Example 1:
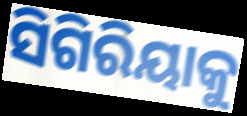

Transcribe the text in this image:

ସିଗିରିୟାକୁ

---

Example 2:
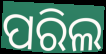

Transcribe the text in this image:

ପରିଲ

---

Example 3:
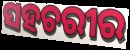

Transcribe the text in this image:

ସହଚରୀର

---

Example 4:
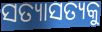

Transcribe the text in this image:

ସତ୍ୟାସତ୍ୟକୁ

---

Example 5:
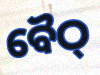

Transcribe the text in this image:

ବୈଠ୍